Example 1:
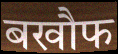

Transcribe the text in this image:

बखौफ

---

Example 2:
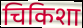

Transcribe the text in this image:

चिकिशा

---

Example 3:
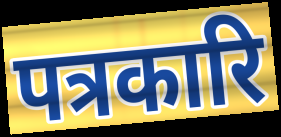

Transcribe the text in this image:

पत्रकारि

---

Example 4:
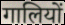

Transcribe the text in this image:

गालियों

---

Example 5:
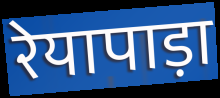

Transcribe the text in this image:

रेयापाड़ा